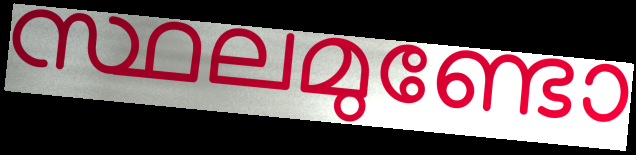
സ്ഥലമുണ്ടോ